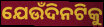
ଯେଉଁଦିନଟିକୁ